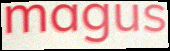
magus